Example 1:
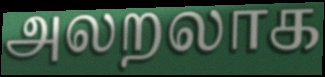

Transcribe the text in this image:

அலறலாக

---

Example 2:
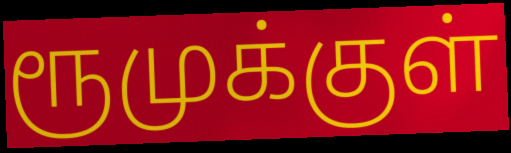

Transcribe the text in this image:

ரூமுக்குள்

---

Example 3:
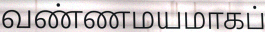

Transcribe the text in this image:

வண்ணமயமாகப்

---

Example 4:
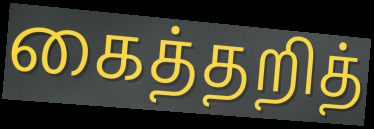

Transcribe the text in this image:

கைத்தறித்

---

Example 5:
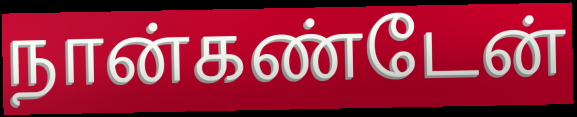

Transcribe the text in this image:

நான்கண்டேன்